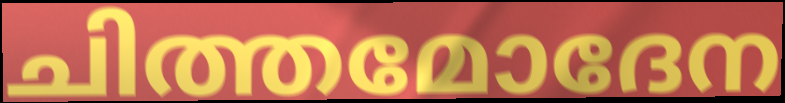
ചിത്തമോദേന